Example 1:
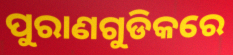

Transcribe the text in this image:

ପୁରାଣଗୁଡିକରେ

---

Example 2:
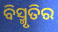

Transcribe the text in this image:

ବିସ୍ମୃତିର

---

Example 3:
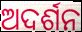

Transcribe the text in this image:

ଅଦର୍ଶନ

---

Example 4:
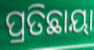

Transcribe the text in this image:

ପ୍ରତିଛାୟା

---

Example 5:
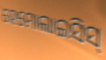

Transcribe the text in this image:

ହେମୋଲାଇସିସ୍